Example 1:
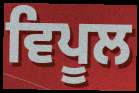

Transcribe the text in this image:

ਵਿਪੂਲ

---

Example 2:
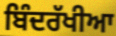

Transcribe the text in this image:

ਬਿੰਦਰੱਖੀਆ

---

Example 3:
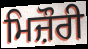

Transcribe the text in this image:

ਮਿਜ਼ੌਰੀ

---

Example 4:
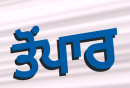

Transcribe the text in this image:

ਤੋਂਪਾਰ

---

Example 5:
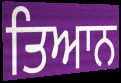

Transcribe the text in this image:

ਤਿਆਨ